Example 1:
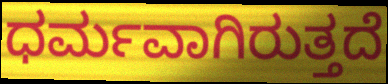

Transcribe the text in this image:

ಧರ್ಮವಾಗಿರುತ್ತದೆ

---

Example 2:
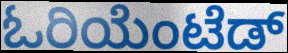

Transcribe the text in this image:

ಓರಿಯೆಂಟೆಡ್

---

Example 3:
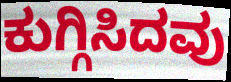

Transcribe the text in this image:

ಕುಗ್ಗಿಸಿದವು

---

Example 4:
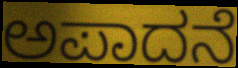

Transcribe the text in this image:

ಅಪಾದನೆ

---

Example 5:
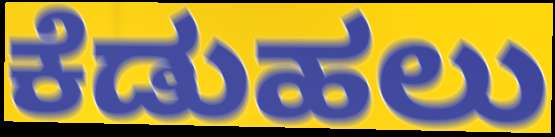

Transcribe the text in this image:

ಕೆಡುಹಲು